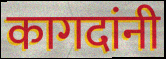
कागदांनी